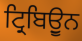
ਟ੍ਰਿਬਿਉੂਨ